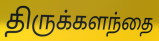
திருக்களந்தை